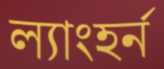
ল্যাংহর্ন